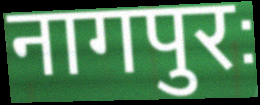
नागपुरः